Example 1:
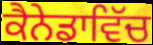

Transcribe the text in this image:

ਕੈਨੇਡਾਵਿੱਚ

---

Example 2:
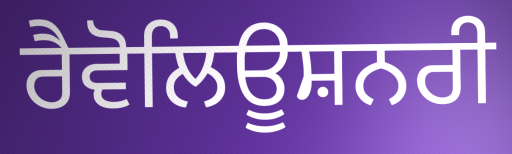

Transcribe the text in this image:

ਰੈਵੋਲਿਊਸ਼ਨਰੀ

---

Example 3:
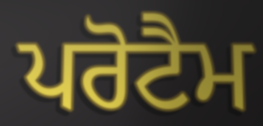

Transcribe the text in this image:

ਪਰੋਟੈਮ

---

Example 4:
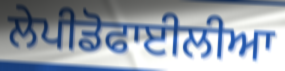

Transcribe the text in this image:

ਲੇਪੀਡੋਫਾਈਲੀਆ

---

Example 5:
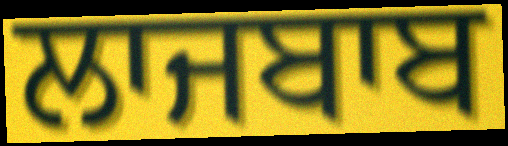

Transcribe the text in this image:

ਲਾਜਬਾਬ